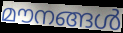
മൗനങ്ങൾ